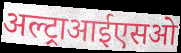
अल्ट्राआईएसओ